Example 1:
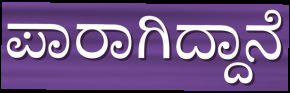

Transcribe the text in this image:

ಪಾರಾಗಿದ್ದಾನೆ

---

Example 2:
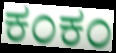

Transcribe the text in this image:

ಕಂಕಂ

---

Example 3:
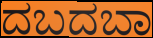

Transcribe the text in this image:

ದಬದಬಾ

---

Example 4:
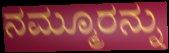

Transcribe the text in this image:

ನಮ್ಮೂರನ್ನು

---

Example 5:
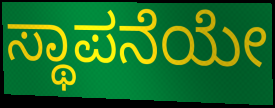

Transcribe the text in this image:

ಸ್ಥಾಪನೆಯೇ